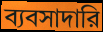
ব্যবসাদারি